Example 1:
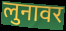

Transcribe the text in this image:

लुनावर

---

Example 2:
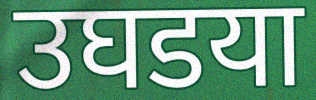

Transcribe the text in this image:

उघडया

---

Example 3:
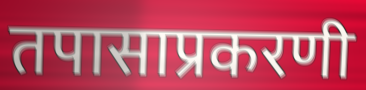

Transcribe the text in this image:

तपासाप्रकरणी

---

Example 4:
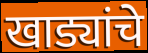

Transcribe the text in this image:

खाड्यांचे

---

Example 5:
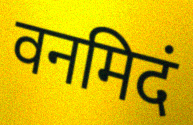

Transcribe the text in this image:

वनमिदं